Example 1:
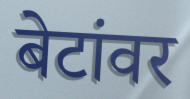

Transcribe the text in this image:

बेटांवर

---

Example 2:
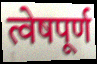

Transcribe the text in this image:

त्वेषपूर्ण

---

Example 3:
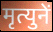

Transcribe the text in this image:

मृत्युनें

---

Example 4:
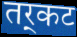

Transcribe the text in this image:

तर्कट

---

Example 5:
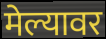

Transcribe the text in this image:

मेल्यावर